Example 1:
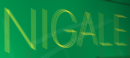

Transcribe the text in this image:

NIGALE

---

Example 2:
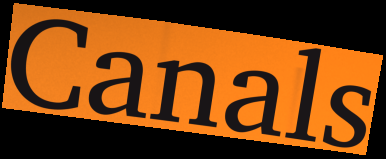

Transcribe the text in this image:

Canals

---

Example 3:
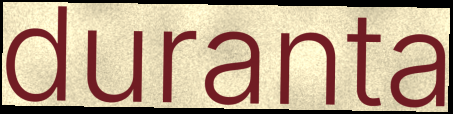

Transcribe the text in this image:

duranta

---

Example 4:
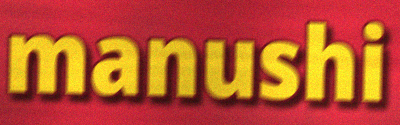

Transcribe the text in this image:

manushi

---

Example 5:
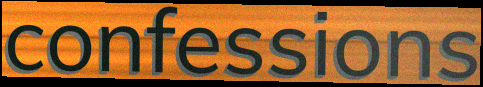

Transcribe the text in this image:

confessions